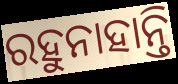
ରହୁନାହାନ୍ତି